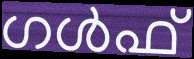
ഗൾഫ്